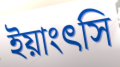
ইয়াংৎসি